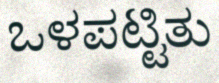
ಒಳಪಟ್ಟಿತು